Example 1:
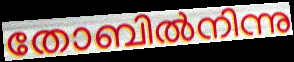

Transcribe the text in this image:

തോബിൽനിന്നു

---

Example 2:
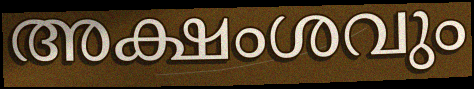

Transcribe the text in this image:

അക്ഷംശവും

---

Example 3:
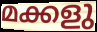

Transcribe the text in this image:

മക്കളു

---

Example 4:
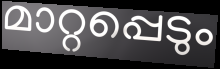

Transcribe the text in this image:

മാറ്റപ്പെടും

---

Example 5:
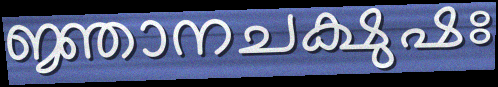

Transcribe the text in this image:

ജ്ഞാനചക്ഷുഷഃ